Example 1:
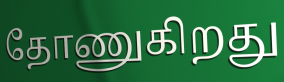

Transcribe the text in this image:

தோணுகிறது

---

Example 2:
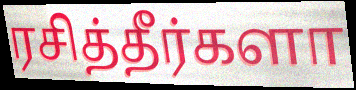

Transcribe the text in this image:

ரசித்தீர்களா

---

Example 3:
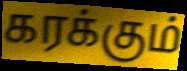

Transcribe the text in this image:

கரக்கும்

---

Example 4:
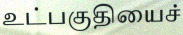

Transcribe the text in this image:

உட்பகுதியைச்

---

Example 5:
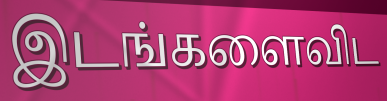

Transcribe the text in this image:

இடங்களைவிட